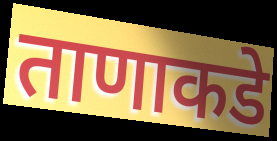
ताणाकडे